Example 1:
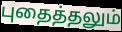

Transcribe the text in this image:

புதைத்தலும்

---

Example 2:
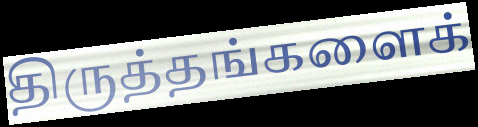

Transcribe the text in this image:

திருத்தங்களைக்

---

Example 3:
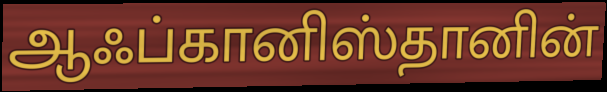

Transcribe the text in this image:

ஆஃப்கானிஸ்தானின்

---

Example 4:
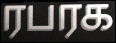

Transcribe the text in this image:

ரபரக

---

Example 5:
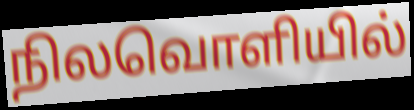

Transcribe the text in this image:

நிலவொளியில்